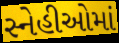
સ્નેહીઓમાં